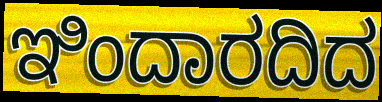
ಇಿಂದಾರದಿದ